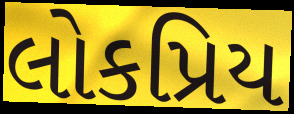
લોકપ્રિય